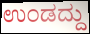
ಉಂಡದ್ದು